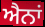
ਐਨਾਂ